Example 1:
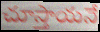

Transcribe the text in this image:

చూస్తాయనే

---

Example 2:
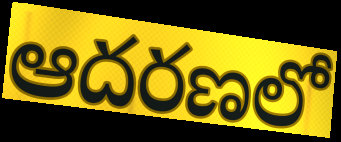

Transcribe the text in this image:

ఆదరణలో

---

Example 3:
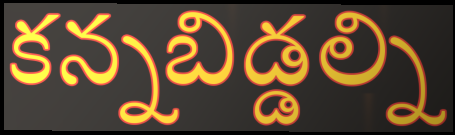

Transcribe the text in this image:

కన్నబిడ్డల్ని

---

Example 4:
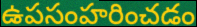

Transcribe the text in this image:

ఉపసంహరించడం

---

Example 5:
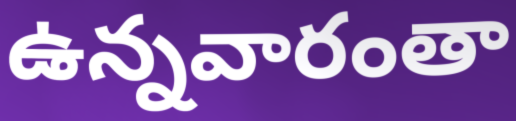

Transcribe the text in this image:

ఉన్నవారంతా